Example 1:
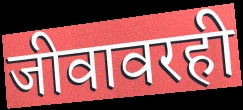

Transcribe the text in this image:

जीवावरही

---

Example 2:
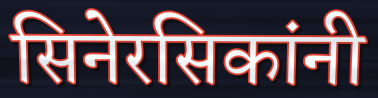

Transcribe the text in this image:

सिनेरसिकांनी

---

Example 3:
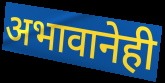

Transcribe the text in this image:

अभावानेही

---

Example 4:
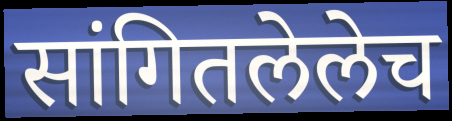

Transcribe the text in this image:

सांगितलेलेच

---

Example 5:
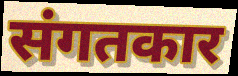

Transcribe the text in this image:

संगतकार